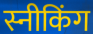
स्नीकिंग